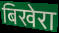
बिखेरा